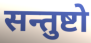
सन्तुष्टो